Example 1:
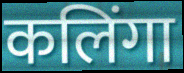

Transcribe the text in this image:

कलिंगा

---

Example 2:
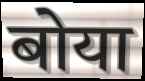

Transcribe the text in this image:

बोया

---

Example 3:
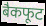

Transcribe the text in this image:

बैकफूट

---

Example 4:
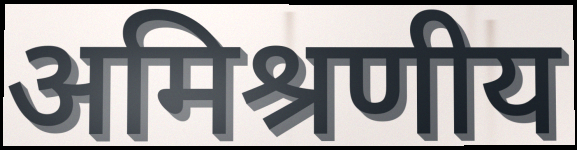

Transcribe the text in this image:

अमिश्रणीय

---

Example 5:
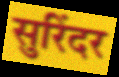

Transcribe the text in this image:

सुरिंदर